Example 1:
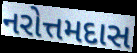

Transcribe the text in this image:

નરોત્તમદાસ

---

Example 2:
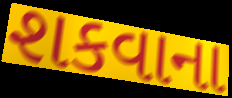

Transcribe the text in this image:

શકવાના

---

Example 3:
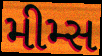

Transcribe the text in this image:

મીમ્સ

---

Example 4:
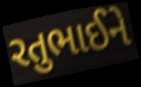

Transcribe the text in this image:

રતુભાઈને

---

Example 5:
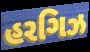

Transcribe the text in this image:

હરગિઝ